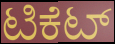
ಟಿಕೆಟ್